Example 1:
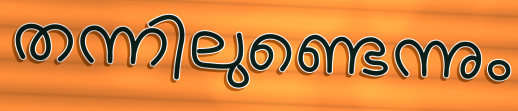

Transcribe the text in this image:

തന്നിലുണ്ടെന്നും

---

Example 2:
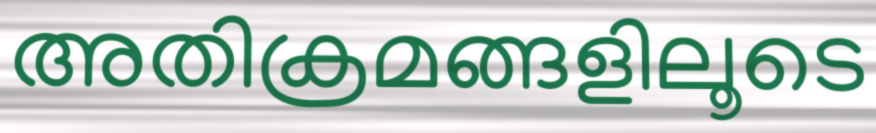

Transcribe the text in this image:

അതിക്രമങ്ങളിലൂടെ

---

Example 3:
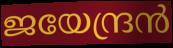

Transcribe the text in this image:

ജയേന്ദ്രൻ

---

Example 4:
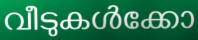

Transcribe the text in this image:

വീടുകൾക്കോ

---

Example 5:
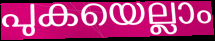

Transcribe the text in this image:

പുകയെല്ലാം